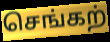
செங்கற்